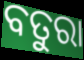
ବତୁରା